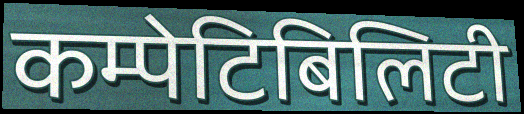
कम्पेटिबिलिटी